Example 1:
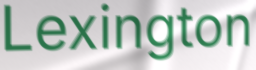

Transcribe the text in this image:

Lexington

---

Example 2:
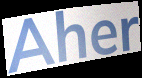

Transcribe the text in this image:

Aher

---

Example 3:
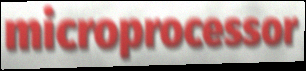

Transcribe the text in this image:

microprocessor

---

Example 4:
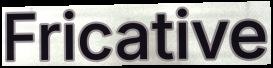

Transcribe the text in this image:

Fricative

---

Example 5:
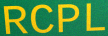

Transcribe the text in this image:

RCPL